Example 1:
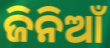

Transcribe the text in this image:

ଜିନିଆଁ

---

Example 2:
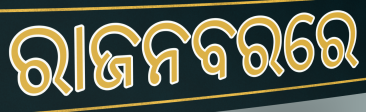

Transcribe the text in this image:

ରାଜନବରରେ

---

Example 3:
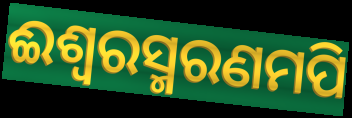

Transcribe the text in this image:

ଈଶ୍ଵରସ୍ମରଣମପି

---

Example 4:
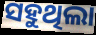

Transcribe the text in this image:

ସହୁଥିଲା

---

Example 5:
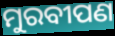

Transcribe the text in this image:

ମୁରବୀପଣ